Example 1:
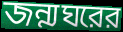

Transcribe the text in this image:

জন্মঘরের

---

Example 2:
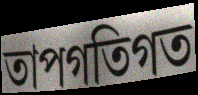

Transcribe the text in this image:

তাপগতিগত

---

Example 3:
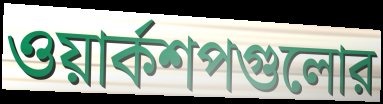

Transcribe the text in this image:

ওয়ার্কশপগুলোর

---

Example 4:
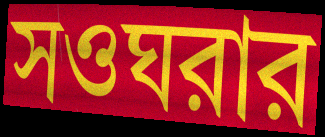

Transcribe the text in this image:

সওঘরার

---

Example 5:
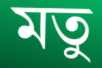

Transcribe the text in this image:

মতু